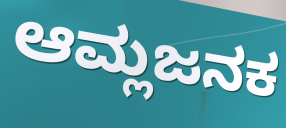
ಆಮ್ಲಜನಕ